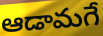
ఆడామగే